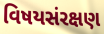
વિષયસંરક્ષણ